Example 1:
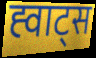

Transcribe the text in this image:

ह्वाट्स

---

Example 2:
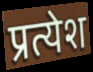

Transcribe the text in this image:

प्रत्येश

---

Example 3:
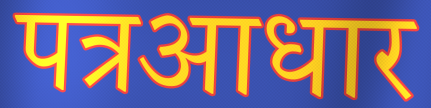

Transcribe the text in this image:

पत्रआधार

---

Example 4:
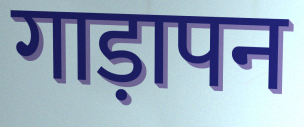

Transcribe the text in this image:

गाड़ापन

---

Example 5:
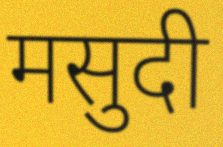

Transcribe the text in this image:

मसुदी